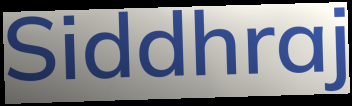
Siddhraj